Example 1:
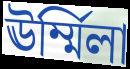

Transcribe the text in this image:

ঊর্ম্মিলা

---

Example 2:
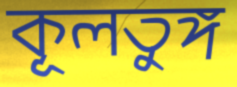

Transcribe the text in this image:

কূলতুঙ্গ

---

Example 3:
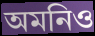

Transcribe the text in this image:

অমনিও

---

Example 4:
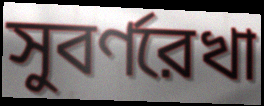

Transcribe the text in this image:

সুবর্ণরেখা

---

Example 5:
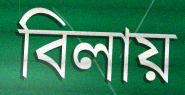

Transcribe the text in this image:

বিলায়